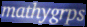
mathygrps